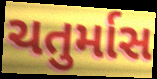
ચતુર્માસ